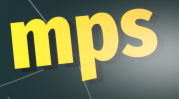
mps